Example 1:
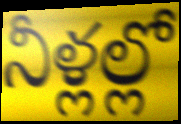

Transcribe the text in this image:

నీళ్లల్లో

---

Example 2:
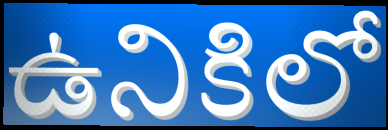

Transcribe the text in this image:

ఉనికిలో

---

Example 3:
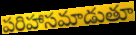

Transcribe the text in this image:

పరిహాసమాడుతూ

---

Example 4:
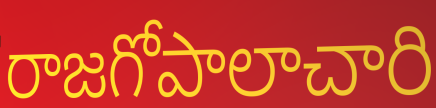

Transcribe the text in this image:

రాజగోపాలాచారి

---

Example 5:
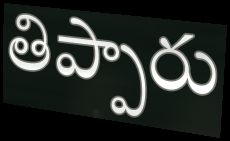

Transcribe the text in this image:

తిప్పారు